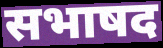
सभाषद